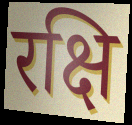
रक्षि